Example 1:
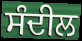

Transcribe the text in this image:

ਸੰਦੀਲ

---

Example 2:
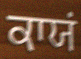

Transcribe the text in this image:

ਕਾਯਂ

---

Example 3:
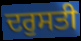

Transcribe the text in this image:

ਦਰੁਸਤੀ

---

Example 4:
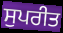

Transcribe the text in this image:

ਸੁਪਰੀਤ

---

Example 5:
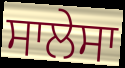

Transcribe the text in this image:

ਸਾਲੇਸਾ